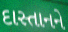
દાસ્તાનને